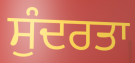
ਸੁੰਦਰਤਾ